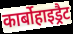
कार्बोहाइड्रैट